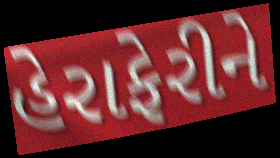
હેરાફેરીને